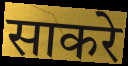
साकरे